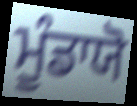
ਮੂੰਡਾਯੋ